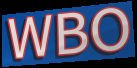
WBO